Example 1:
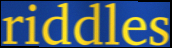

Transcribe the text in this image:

riddles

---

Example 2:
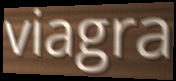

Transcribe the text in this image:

viagra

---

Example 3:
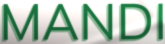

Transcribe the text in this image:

MANDI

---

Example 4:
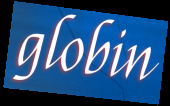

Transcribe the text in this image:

globin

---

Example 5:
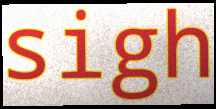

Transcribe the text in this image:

sigh